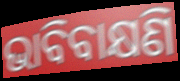
ଭାବିବାକ୍ଷଣି